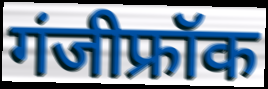
गंजीफ्रॉक